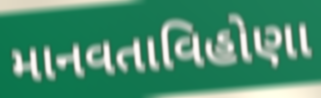
માનવતાવિહોણા